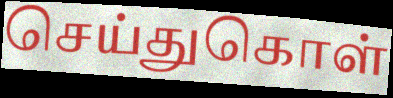
செய்துகொள்